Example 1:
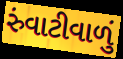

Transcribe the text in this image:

રુંવાટીવાળું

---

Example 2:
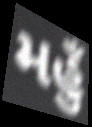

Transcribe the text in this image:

મહુઁ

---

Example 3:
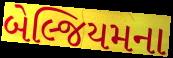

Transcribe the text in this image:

બેલ્જિયમના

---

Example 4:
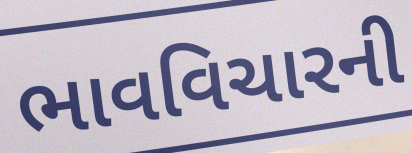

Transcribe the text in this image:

ભાવવિચારની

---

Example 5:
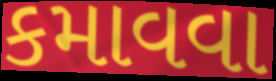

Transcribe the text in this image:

કમાવવા